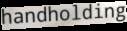
handholding